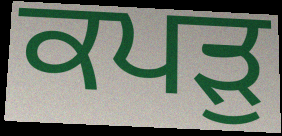
ਕਪੜੁ